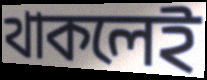
থাকলেই